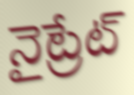
నైట్రేట్